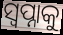
ସ୍ୱପ୍ନାକୁ